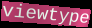
viewtype